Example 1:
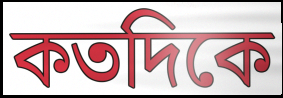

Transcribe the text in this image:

কতদিকে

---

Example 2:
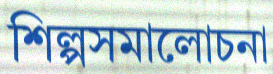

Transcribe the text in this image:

শিল্পসমালোচনা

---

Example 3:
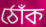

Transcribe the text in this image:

ঠোঁক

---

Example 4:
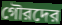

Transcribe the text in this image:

গৌরদের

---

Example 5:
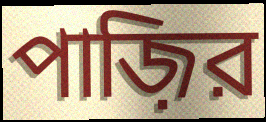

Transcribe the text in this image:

পাজ়ির